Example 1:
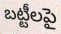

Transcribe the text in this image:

బట్టీలపై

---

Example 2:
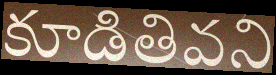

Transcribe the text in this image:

కూడితివని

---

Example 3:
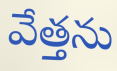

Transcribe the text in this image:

వేత్తను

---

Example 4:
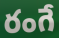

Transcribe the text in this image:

రంగే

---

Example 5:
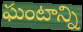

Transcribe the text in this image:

ఘంటాన్ని